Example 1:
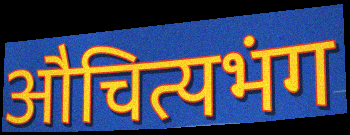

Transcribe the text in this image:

औचित्यभंग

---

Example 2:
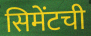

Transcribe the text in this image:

सिमेंटची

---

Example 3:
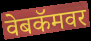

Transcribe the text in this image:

वेबकॅमवर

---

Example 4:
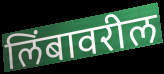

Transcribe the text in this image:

लिंबावरील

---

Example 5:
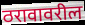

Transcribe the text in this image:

ठरावावरील